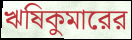
ঋষিকুমারের